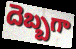
దెబ్బగా